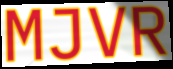
MJVR